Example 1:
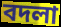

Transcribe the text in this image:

বদলা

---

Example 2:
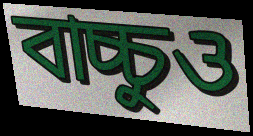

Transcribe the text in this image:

বাচ্চুও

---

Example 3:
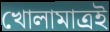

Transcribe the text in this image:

খোলামাত্রই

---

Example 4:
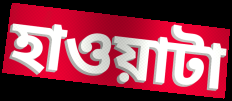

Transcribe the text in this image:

হাওয়াটা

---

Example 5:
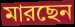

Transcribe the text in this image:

মারছেন